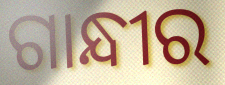
ଗାନ୍ଧୀର